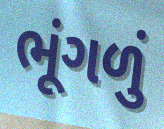
ભૂંગળું